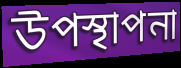
উপস্থাপনা